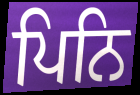
ਪਿਨਿ